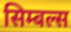
सिम्बल्स